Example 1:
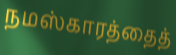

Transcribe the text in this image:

நமஸ்காரத்தைத்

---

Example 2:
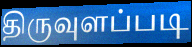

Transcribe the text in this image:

திருவுளப்படி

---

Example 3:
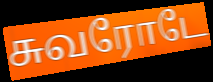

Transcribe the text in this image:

சுவரோடே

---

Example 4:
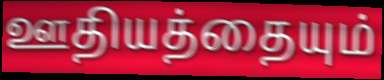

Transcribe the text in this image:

ஊதியத்தையும்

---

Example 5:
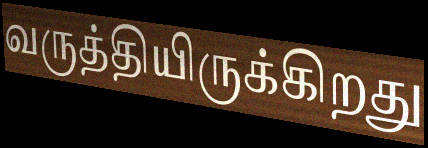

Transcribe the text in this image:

வருத்தியிருக்கிறது